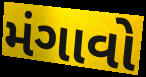
મંગાવો